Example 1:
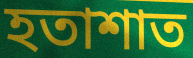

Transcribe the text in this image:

হতাশাত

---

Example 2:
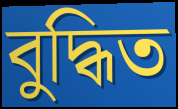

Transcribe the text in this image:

বুদ্ধিত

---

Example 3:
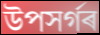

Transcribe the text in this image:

উপসৰ্গৰ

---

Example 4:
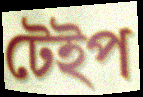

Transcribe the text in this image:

টেইপ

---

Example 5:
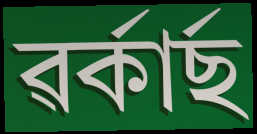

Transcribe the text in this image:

ৱৰ্কাৰ্ছ